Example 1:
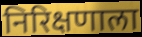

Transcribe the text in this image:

निरिक्षणाला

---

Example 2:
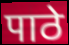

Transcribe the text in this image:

पाठे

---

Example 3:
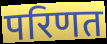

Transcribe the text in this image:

परिणत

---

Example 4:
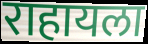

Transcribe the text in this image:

राहायला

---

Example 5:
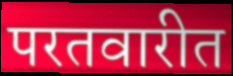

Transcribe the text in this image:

परतवारीत